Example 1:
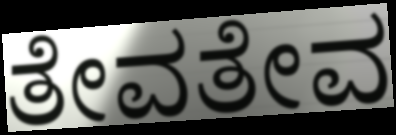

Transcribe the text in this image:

ತೇವತೇವ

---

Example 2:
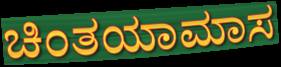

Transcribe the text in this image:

ಚಿಂತಯಾಮಾಸ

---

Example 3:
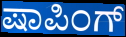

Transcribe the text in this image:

ಷಾಪಿಂಗ್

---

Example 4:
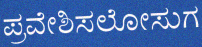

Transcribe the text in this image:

ಪ್ರವೇಶಿಸಲೋಸುಗ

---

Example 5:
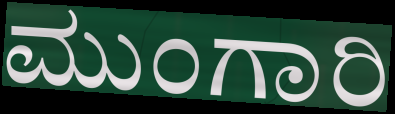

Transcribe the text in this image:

ಮುಂಗಾರಿ